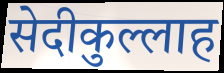
सेदीकुल्लाह